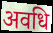
अवधि